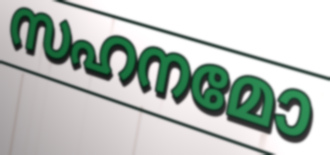
സഹനമോ